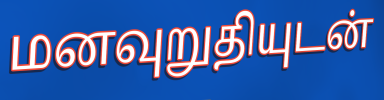
மனவுறுதியுடன்